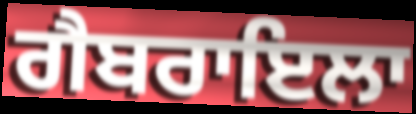
ਗੈਬਰਾਇਲਾ